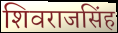
शिवराजसिंह